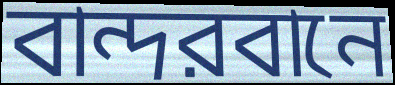
বান্দরবানে